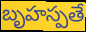
బృహస్పతే